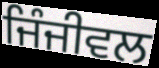
ਜਿੰਜੀਵਲ